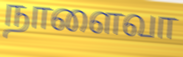
நாளைவா